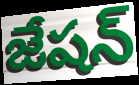
జేషన్